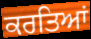
ਕਰਤਿਆਂ